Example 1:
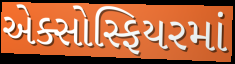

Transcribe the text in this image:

એક્સોસ્ફિયરમાં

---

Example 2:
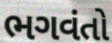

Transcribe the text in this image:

ભગવંતો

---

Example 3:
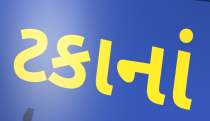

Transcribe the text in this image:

ટકાનાં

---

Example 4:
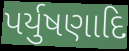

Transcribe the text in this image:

પર્યુષણાદિ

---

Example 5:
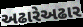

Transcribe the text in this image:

અઢારેઅઢાર